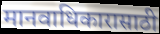
मानवाधिकारासाठी